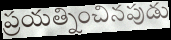
ప్రయత్నించినపుడు